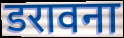
डरावना